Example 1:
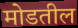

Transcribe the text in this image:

मोडतील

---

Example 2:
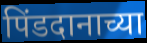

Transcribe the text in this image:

पिंडदानाच्या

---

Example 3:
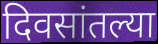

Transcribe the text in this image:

दिवसांतल्या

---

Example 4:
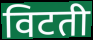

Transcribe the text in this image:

विटती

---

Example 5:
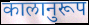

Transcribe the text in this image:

कालानुरूप